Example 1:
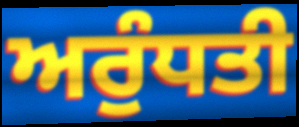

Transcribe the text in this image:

ਅਰੁੰਧਤੀ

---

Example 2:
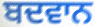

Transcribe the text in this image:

ਬਦਵਾਨ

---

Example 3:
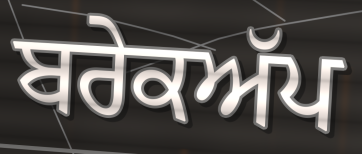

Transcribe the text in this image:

ਬਰੇਕਅੱਪ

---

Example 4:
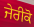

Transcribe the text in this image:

ਜੇਰੀਕੋ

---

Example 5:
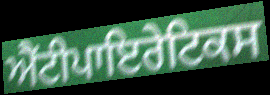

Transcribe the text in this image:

ਐਂਟੀਪਾਇਰੇਟਿਕਸ